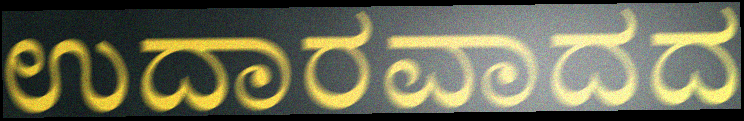
ಉದಾರವಾದದ